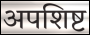
अपशिष्ट